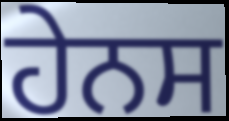
ਹੇਨਸ